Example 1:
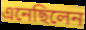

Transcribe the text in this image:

এনেছিলেন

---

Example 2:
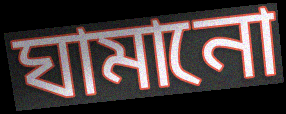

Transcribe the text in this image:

ঘামানো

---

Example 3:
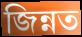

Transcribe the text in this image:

জিন্নত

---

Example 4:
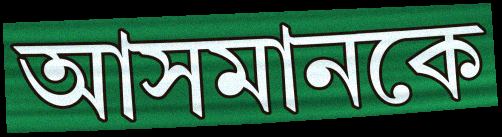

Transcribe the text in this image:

আসমানকে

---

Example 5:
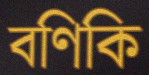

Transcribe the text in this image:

বণিকি